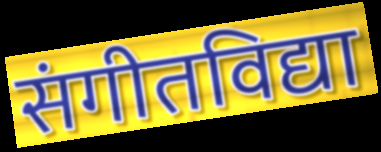
संगीतविद्या